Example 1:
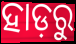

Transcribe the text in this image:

ହାଡ଼ରୁ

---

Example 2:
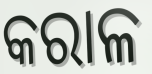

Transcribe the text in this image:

କରାଳ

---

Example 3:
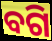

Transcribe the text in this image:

ବଗି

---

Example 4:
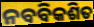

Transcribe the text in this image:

ନବବିକଶିତ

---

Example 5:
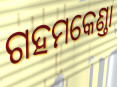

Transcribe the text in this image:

ଗହମକେଣ୍ଡା